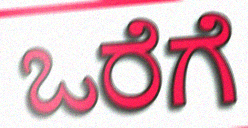
ಒರೆಗೆ